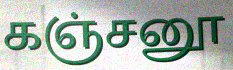
கஞ்சனூ